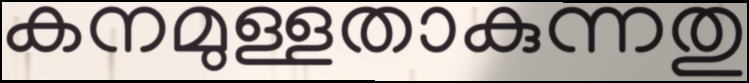
കനമുള്ളതാകുന്നതു